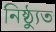
নিষ্ঠ্যুত